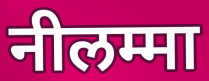
नीलम्मा